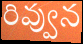
రివ్వున